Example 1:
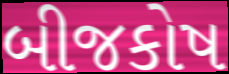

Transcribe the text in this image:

બીજકોષ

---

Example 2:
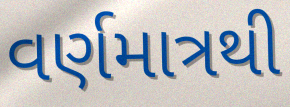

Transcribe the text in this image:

વર્ણમાત્રથી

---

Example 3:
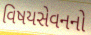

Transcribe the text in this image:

વિષયસેવનનો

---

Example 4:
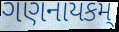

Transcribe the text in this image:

ગણનાયકમ્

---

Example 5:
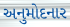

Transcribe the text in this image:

અનુમોદનાર